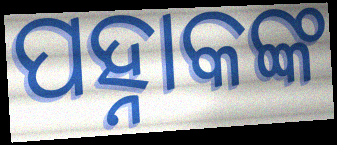
ପହ୍ନାକଙ୍କ